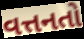
વત્તનતો